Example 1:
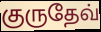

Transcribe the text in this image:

குருதேவ்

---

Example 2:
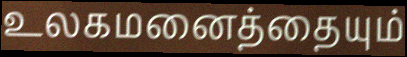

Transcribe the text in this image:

உலகமனைத்தையும்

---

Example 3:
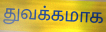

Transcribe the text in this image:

துவக்கமாக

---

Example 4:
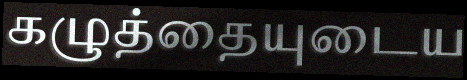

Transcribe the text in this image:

கழுத்தையுடைய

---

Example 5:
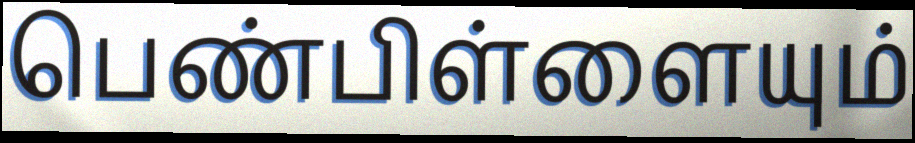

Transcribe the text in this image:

பெண்பிள்ளையும்